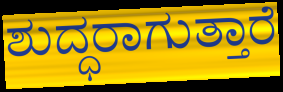
ಶುದ್ಧರಾಗುತ್ತಾರೆ